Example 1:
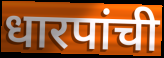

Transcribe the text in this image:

धारपांची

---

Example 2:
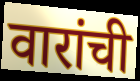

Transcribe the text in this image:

वारांची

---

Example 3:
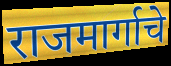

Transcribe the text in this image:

राजमार्गाचे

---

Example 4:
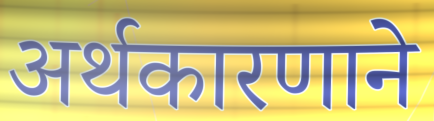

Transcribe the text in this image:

अर्थकारणाने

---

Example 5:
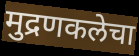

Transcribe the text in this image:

मुद्रणकलेचा